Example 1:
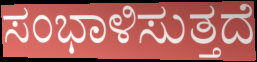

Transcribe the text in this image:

ಸಂಭಾಳಿಸುತ್ತದೆ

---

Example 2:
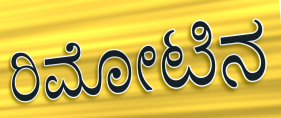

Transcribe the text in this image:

ರಿಮೋಟಿನ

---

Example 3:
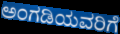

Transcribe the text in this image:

ಅಂಗಡಿಯವರಿಗೆ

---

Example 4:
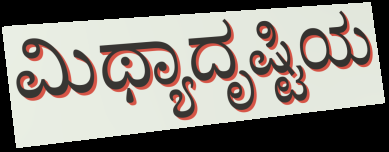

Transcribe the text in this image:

ಮಿಥ್ಯಾದೃಷ್ಟಿಯ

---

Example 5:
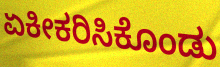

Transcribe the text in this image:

ಏಕೀಕರಿಸಿಕೊಂಡು